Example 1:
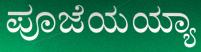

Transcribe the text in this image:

ಪೂಜೆಯಯ್ಯಾ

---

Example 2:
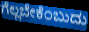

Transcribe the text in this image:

ಗೆಲ್ಲಬೇಕೆಂಬುದು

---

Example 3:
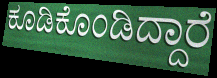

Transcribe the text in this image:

ಕೂಡಿಕೊಂಡಿದ್ದಾರೆ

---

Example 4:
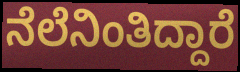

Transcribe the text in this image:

ನೆಲೆನಿಂತಿದ್ದಾರೆ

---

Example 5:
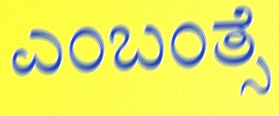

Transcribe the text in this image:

ಎಂಬಂತ್ಸೆ